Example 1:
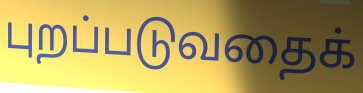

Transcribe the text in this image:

புறப்படுவதைக்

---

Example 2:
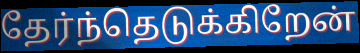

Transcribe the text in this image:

தேர்ந்தெடுக்கிறேன்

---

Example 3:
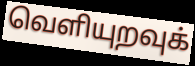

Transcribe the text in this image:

வெளியுறவுக்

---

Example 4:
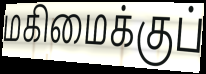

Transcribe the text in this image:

மகிமைக்குப்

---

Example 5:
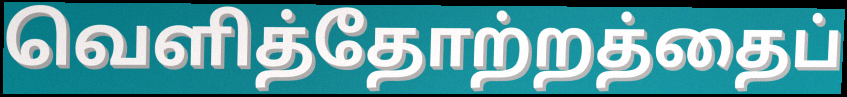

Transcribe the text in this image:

வெளித்தோற்றத்தைப்